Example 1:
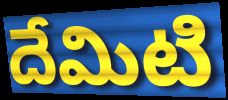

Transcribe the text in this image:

దేమిటి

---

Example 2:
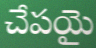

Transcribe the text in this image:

చేపయై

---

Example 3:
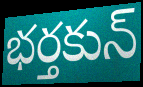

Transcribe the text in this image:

భర్తకున్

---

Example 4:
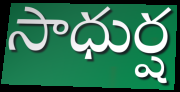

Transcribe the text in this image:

సాధుర్ష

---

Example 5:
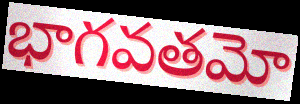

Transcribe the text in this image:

భాగవతమో